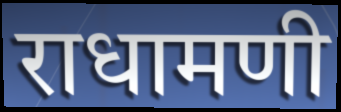
राधामणी